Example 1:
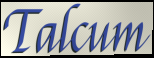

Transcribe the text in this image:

Talcum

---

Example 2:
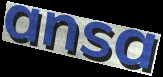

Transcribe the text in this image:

ansa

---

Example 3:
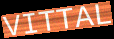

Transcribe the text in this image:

VITTAL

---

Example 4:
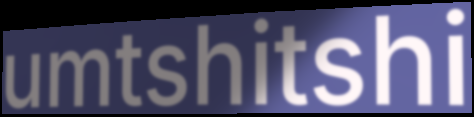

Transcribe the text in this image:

umtshitshi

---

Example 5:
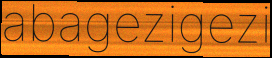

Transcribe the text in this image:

abagezigezi